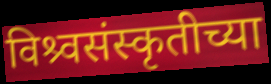
विश्र्वसंस्कृतीच्या